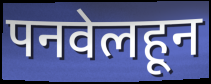
पनवेलहून